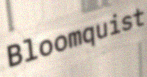
Bloomquist